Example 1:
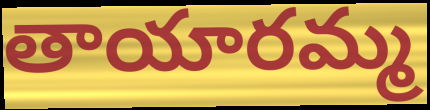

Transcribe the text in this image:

తాయారమ్మ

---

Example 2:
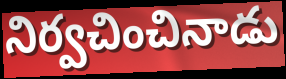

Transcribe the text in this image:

నిర్వచించినాడు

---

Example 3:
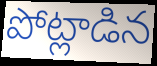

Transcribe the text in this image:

పోట్లాడిన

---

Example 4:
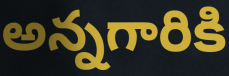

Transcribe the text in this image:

అన్నగారికి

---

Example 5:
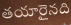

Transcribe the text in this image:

తయారైనది